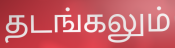
தடங்கலும்